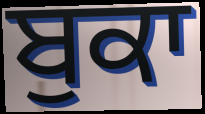
ਬੁਕਾ